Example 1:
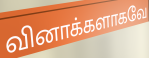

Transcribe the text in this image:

வினாக்களாகவே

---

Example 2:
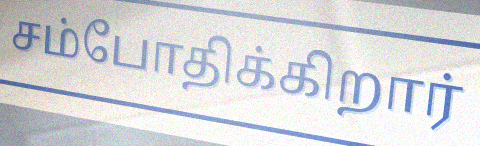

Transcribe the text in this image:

சம்போதிக்கிறார்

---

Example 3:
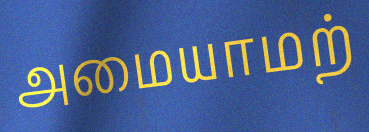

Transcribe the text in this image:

அமையாமற்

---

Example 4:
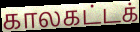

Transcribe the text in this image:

காலகட்டக்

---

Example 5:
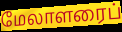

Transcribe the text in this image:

மேலாளரைப்